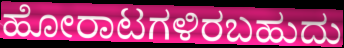
ಹೋರಾಟಗಳಿರಬಹುದು